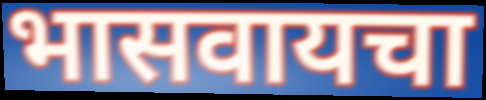
भासवायचा